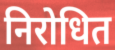
निरोधित